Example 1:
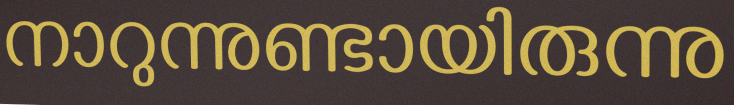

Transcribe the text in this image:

നാറുന്നുണ്ടായിരുന്നു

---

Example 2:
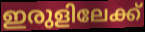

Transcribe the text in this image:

ഇരുളിലേക്ക്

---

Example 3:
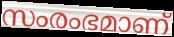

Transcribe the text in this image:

സംരംഭമാണ്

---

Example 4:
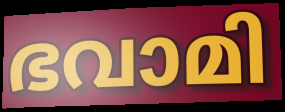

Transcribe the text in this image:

ഭവാമി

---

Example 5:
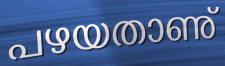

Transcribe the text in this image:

പഴയതാണു്